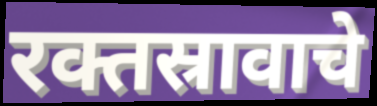
रक्तस्रावाचे